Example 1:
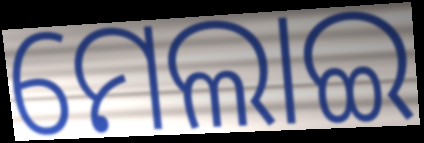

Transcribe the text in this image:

ମେଲାଇ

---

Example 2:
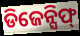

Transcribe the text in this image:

ଡିଜେନ୍ସିଫ୍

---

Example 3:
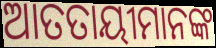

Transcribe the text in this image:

ଆତତାୟୀମାନଙ୍କ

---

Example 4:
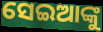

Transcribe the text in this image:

ସେଇଆଙ୍କୁ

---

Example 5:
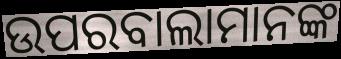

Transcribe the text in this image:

ଉପରବାଲାମାନଙ୍କ